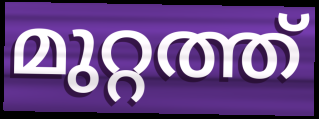
മുറ്റത്ത്